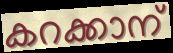
കറക്കാന്